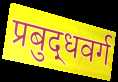
प्रबुद्धवर्ग